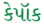
કેપૉક